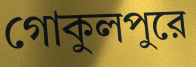
গোকুলপুরে